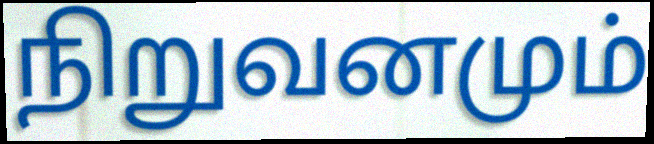
நிறுவனமும்